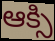
ఆక్సి